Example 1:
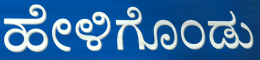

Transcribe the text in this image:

ಹೇಳಿಗೊಂಡು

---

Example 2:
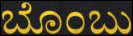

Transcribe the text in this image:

ಬೊಂಬು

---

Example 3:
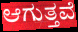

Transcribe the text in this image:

ಆಗುತ್ತವೆ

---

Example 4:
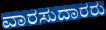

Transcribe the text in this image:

ವಾರಸುದಾರರು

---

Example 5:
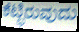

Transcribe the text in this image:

ಕೆಟ್ಟಿರುವುದು